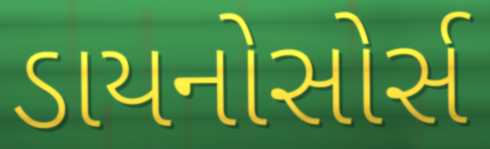
ડાયનોસોર્સ